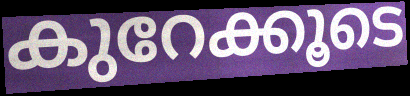
കുറേക്കൂടെ